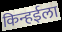
किन्हईला